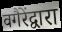
वगैरेंद्वारा